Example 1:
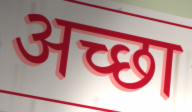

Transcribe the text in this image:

अच्‍छा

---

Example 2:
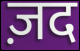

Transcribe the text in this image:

ज़द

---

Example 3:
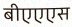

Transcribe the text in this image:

बीएएएस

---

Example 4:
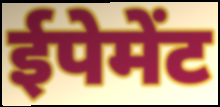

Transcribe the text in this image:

ईपेमेंट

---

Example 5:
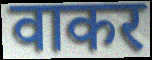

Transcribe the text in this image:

वाकर